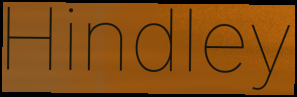
Hindley